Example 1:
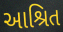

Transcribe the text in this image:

આશ્રિત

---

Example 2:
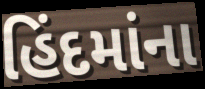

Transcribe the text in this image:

હિંદમાંના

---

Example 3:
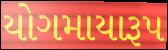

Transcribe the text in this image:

યોગમાયારૂપ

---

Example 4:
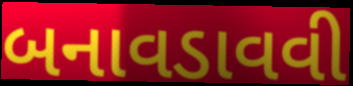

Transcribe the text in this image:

બનાવડાવવી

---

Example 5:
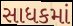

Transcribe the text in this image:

સાધકમાં